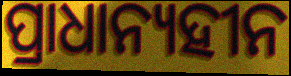
ପ୍ରାଧାନ୍ୟହୀନ